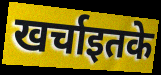
खर्चाइतके